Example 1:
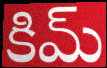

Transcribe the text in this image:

కిమ్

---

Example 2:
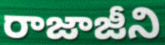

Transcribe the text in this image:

రాజాజీని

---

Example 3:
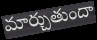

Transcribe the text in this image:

మార్చుతుందా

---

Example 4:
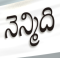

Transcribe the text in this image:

నెన్మిది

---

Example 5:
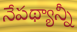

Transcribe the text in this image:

నేపథ్యాన్నీ